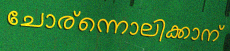
ചോര്ന്നൊലിക്കാന്